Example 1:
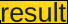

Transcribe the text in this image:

result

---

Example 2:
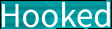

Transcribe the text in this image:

Hooked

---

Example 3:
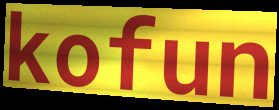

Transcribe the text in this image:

kofun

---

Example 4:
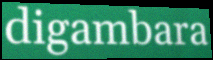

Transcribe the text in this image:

digambara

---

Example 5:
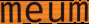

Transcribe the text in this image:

meum